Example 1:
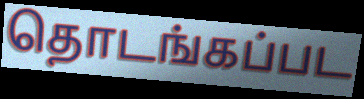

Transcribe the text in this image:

தொடங்கப்பட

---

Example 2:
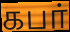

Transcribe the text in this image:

கபர்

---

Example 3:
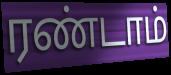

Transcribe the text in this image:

ரண்டாம்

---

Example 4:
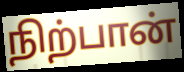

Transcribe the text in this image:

நிற்பான்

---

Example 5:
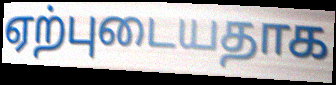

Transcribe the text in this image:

ஏற்புடையதாக